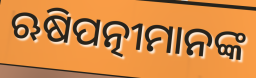
ଋଷିପତ୍ନୀମାନଙ୍କ